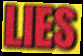
LIES